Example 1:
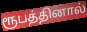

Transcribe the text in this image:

ரூபத்தினால்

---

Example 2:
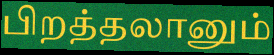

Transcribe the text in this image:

பிறத்தலானும்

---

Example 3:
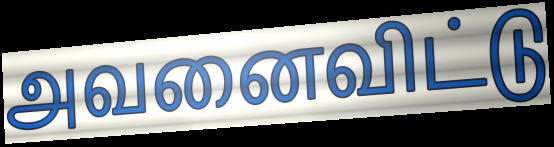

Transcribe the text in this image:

அவனைவிட்டு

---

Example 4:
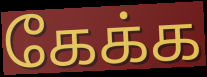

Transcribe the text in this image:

கேக்க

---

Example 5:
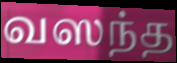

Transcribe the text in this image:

வஸந்த